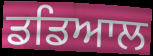
ਡਡਿਆਲ